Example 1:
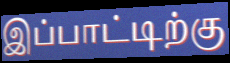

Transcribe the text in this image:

இப்பாட்டிற்கு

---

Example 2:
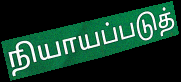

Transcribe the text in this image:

நியாயப்படுத்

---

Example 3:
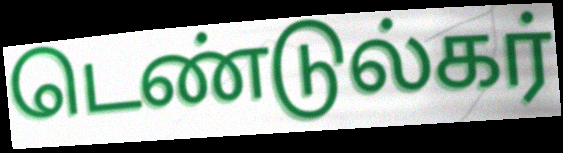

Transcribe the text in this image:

டெண்டுல்கர்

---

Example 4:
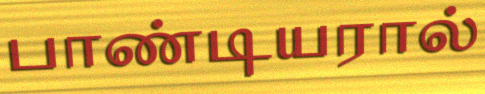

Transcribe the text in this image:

பாண்டியரால்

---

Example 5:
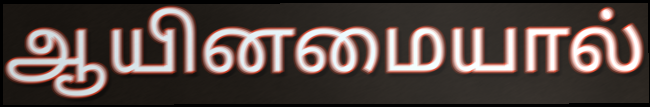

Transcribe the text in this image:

ஆயினமையால்